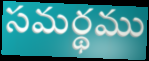
సమర్థము